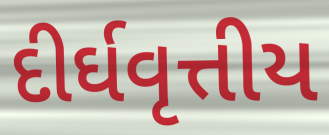
દીર્ઘવૃત્તીય